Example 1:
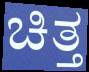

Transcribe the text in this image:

ಚಿತ್ತ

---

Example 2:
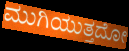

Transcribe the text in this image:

ಮುಗಿಯುತ್ತದೋ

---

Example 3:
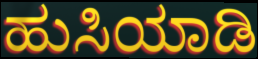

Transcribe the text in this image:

ಹುಸಿಯಾಡಿ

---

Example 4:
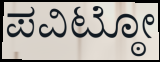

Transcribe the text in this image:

ಪವಿಟ್ಠೋ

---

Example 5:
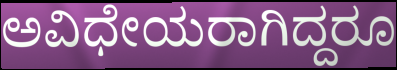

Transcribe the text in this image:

ಅವಿಧೇಯರಾಗಿದ್ದರೂ